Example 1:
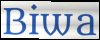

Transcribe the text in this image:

Biwa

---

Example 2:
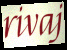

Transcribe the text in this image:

rivaj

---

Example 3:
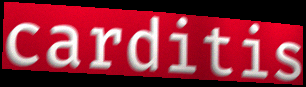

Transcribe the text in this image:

carditis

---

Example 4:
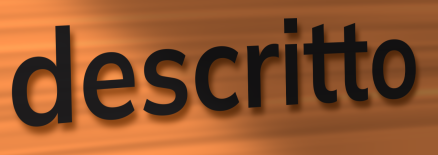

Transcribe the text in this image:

descritto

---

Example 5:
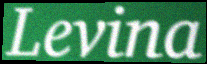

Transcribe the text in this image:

Levina